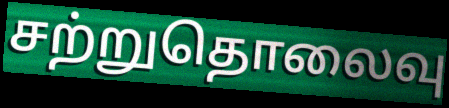
சற்றுதொலைவு